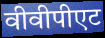
वीवीपीएट